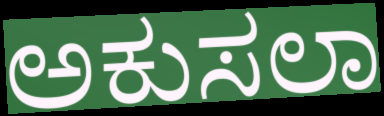
ಅಕುಸಲಾ